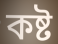
কষ্ট